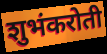
शुभंकरोती